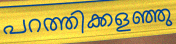
പറത്തിക്കളഞ്ഞു